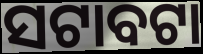
ସଟାବଟା